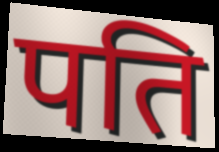
पति